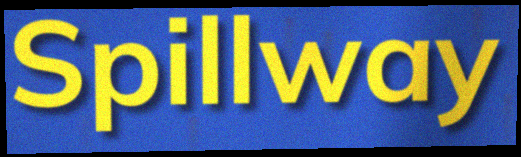
Spillway